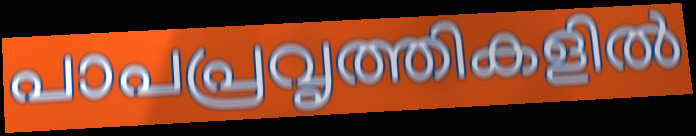
പാപപ്രവൃത്തികളിൽ